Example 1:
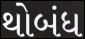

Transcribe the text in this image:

થોબંધ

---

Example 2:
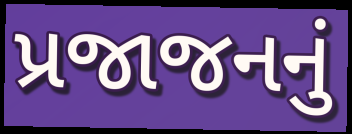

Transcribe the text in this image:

પ્રજાજનનું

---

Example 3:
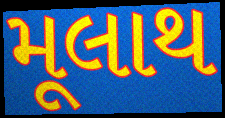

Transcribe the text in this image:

મૂલાથ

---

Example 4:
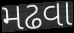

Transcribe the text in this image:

મઢવા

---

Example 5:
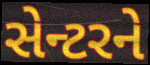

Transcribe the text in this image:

સેન્ટરને